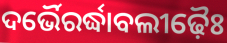
ଦର୍ଭୈରର୍ଦ୍ଧାବଲୀଢ଼ୈଃ